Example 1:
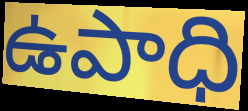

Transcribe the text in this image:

ఉపాధి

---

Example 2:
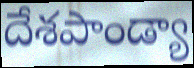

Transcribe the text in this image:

దేశపాండ్యా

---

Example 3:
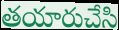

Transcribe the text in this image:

తయారుచేసి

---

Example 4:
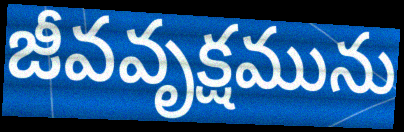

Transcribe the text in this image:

జీవవృక్షమును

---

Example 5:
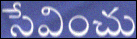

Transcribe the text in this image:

సేవించు